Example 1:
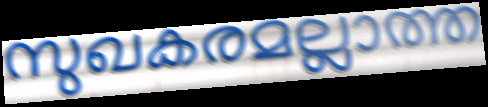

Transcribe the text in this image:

സുഖകരമല്ലാത്ത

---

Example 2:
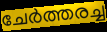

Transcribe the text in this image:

ചേർത്തരച്ച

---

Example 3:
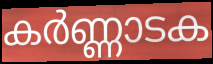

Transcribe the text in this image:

കർണ്ണാടക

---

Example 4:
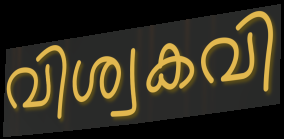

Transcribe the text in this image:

വിശ്വകവി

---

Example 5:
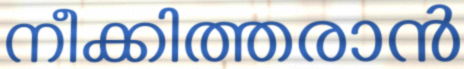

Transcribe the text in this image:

നീക്കിത്തരാൻ